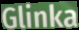
Glinka